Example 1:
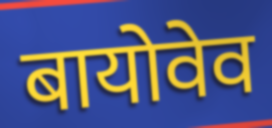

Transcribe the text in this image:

बायोवेव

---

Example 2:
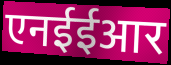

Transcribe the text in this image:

एनईईआर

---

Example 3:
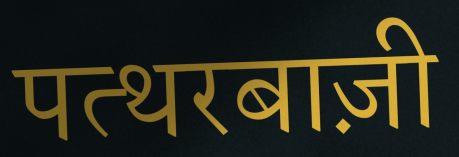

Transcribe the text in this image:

पत्थरबाज़ी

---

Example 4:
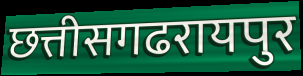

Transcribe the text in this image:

छत्तीसगढरायपुर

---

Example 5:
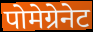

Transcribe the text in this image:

पोमेग्रेनेट